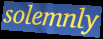
solemnly